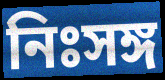
নিঃসঙ্গ